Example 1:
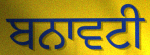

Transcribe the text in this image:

ਬਨਾਵਟੀ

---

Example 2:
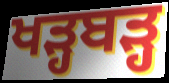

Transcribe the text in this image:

ਖੜ੍ਹਬੜ੍ਹ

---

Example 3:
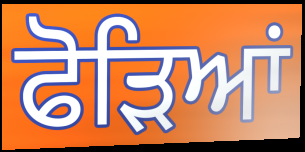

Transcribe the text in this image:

ਫੋੜਿਆਂ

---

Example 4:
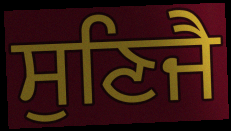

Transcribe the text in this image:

ਸੁਣਿਜੈ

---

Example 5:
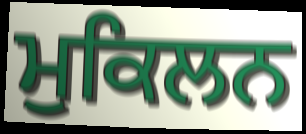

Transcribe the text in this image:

ਮੁਕਿਲਨ